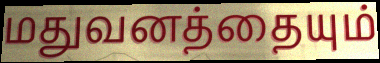
மதுவனத்தையும்